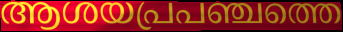
ആശയപ്രപഞ്ചത്തെ